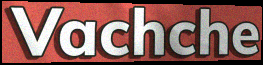
Vachche